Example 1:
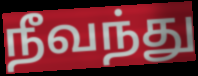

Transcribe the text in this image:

நீவந்து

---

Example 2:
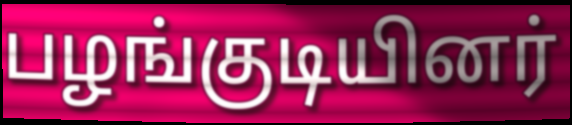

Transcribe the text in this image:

பழங்குடியினர்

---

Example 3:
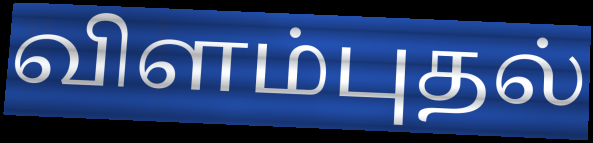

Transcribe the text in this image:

விளம்புதல்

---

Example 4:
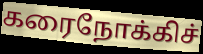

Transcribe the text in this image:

கரைநோக்கிச்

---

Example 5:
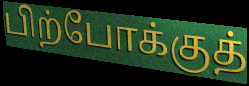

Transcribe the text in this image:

பிற்போக்குத்